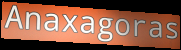
Anaxagoras